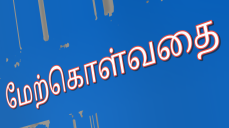
மேற்கொள்வதை